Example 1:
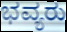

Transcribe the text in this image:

ಭವ್ಯರು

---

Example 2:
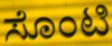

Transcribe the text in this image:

ಸೊಂಟಿ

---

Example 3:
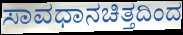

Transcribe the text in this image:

ಸಾವಧಾನಚಿತ್ತದಿಂದ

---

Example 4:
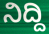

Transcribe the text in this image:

ನಿದ್ದಿ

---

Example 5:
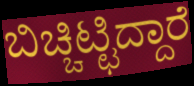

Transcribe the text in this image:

ಬಿಚ್ಚಿಟ್ಟಿದ್ದಾರೆ